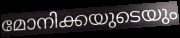
മോനിക്കയുടെയും